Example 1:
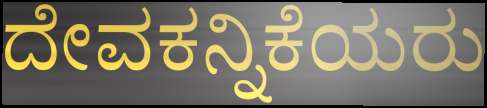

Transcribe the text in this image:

ದೇವಕನ್ನಿಕೆಯರು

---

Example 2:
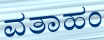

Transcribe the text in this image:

ವತಾಹಂ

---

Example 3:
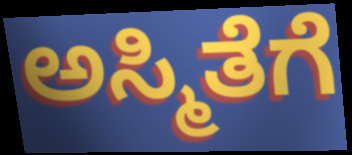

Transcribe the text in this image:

ಅಸ್ಮಿತೆಗೆ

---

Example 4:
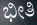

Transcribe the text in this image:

ಭೀತಿ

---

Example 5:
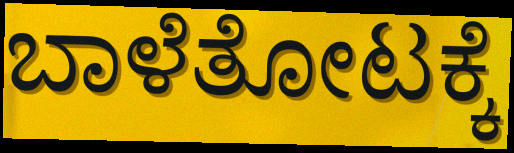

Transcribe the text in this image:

ಬಾಳೆತೋಟಕ್ಕೆ